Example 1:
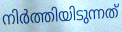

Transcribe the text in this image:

നിർത്തിയിടുന്നത്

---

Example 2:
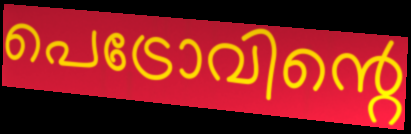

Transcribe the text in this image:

പെട്രോവിന്റെ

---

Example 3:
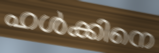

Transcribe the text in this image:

ഹൾക്കിനെ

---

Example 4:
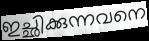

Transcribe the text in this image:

ഇച്ഛിക്കുന്നവനെ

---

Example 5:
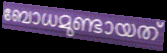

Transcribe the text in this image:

ബോധമുണ്ടായത്